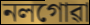
নলগোৱা